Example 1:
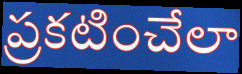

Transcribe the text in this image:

ప్రకటించేలా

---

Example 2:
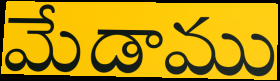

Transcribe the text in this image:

మేడాము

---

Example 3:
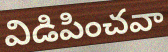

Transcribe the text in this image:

విడిపించవా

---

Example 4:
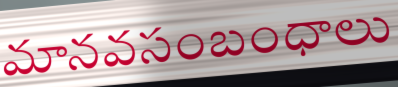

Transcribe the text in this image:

మానవసంబంధాలు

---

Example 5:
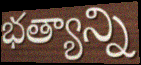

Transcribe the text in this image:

భత్యాన్ని